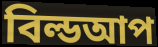
বিল্ডআপ